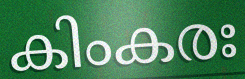
കിംകരഃ